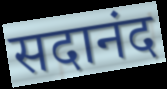
सदानंद